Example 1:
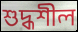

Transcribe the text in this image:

শুদ্ধশীল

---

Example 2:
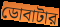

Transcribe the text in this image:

ডোবাটার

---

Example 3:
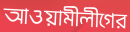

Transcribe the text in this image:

আওয়ামীলীগের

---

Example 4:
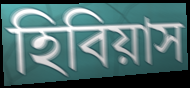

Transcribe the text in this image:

হিবিয়াস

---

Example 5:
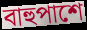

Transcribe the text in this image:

বাহুপাশে